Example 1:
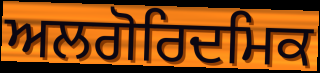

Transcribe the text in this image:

ਅਲਗੋਰਿਦਮਿਕ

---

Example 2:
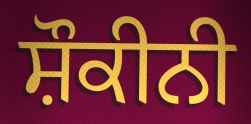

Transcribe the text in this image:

ਸ਼ੌਕੀਨੀ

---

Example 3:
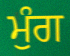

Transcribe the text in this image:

ਮੁੰਗ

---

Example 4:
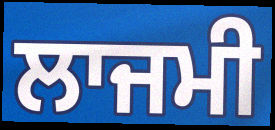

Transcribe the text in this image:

ਲਾਜਮੀ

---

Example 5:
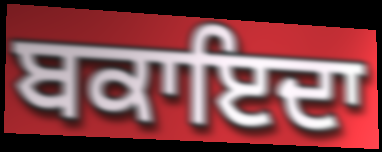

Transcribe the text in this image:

ਬਕਾਇਦਾ